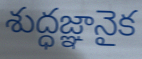
శుద్ధజ్ఞానైక